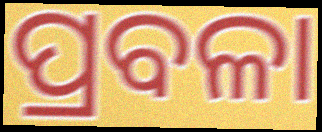
ପ୍ରବଳା